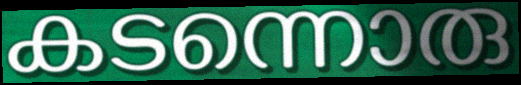
കടന്നൊരു